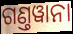
ଗଣ୍ତୱାନା